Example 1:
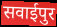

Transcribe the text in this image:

सवाईपुर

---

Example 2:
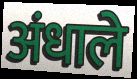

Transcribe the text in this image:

अंधाले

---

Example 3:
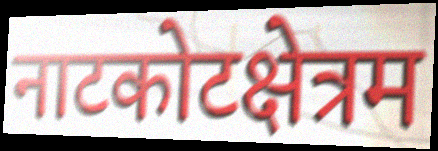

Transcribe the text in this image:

नाटकोटक्षेत्रम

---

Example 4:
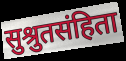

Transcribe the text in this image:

सुश्रुतसंहिता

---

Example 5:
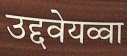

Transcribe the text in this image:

उद्दवेयव्वा